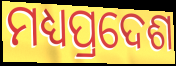
ମଧ୍ୟପ୍ରଦେଶ